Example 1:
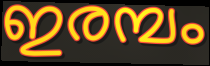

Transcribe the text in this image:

ഇരമ്പം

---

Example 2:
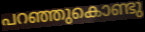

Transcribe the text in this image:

പറഞ്ഞുകൊണ്ടു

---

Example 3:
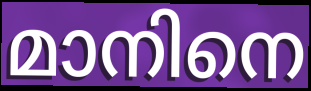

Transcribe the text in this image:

മാനിനെ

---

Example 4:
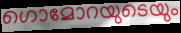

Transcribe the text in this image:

ഗൊമോറയുടെയും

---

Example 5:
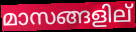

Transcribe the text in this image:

മാസങ്ങളില്